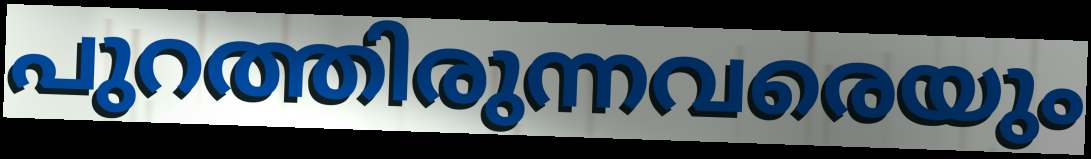
പുറത്തിരുന്നവരെയും